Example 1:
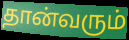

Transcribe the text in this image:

தான்வரும்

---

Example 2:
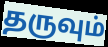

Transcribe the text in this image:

தருவும்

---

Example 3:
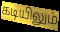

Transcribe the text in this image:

கடியிலும்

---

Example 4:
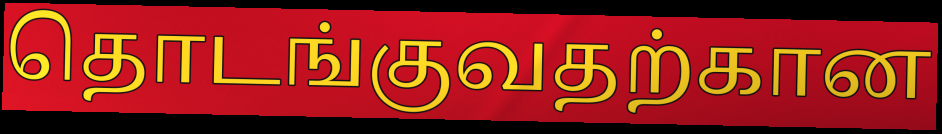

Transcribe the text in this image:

தொடங்குவதற்கான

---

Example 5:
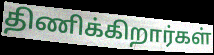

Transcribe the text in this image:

திணிக்கிறார்கள்